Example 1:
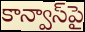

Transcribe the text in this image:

కాన్వాస్‌పై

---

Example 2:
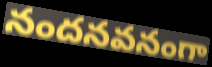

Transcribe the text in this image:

నందనవనంగా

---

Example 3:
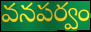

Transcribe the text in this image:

వనపర్వం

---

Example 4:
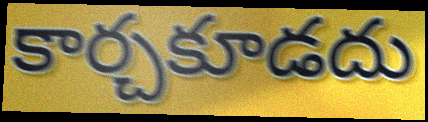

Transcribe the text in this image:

కార్చకూడదు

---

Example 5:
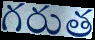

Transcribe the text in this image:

గరుత